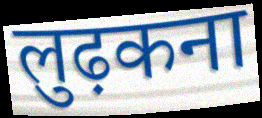
लुढ़कना